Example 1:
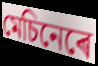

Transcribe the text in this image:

মেচিনেৰে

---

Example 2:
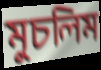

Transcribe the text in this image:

মুচলিম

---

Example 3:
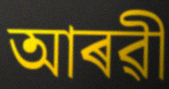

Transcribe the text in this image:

আৰৱী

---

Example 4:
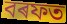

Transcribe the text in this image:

বৰফত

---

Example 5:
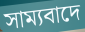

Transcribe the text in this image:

সাম্যবাদে